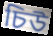
চিউ